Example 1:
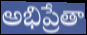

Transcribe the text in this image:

అభిప్రేతా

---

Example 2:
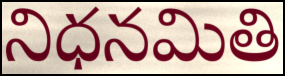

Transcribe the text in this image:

నిధనమితి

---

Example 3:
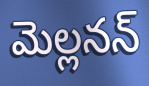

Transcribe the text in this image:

మెల్లనన్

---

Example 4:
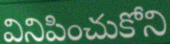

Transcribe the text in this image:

వినిపించుకోని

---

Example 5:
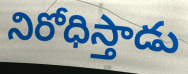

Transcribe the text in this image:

నిరోధిస్తాడు